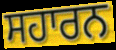
ਸਹਾਰਨ